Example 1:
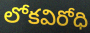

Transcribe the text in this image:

లోకవిరోధి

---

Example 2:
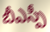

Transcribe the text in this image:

బీఎస్పీ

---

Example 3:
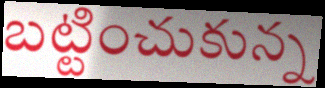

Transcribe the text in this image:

బట్టించుకున్న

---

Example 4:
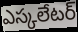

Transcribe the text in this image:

ఎస్కలేటర్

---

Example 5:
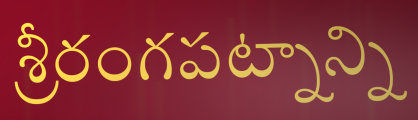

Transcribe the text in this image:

శ్రీరంగపట్నాన్ని